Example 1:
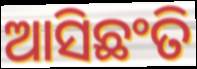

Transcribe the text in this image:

ଆସିଛଂତି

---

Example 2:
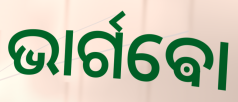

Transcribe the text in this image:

ଭାର୍ଗଵୋ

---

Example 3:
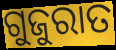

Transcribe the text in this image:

ଗୁଜୁରାତ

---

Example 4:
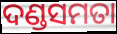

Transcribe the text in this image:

ଦଣ୍ଡସମତା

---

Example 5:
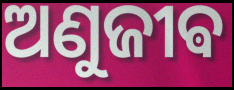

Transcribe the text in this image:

ଅଣୁଜୀଵ